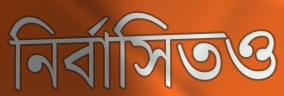
নির্বাসিতও